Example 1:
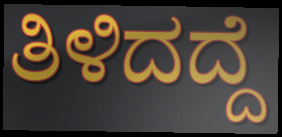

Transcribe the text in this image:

ತಿಳಿದದ್ದೆ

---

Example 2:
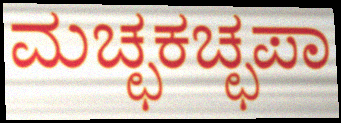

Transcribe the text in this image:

ಮಚ್ಛಕಚ್ಛಪಾ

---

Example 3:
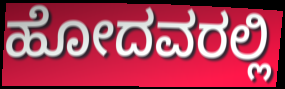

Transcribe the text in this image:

ಹೋದವರಲ್ಲಿ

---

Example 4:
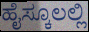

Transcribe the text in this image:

ಹೈಸ್ಕೂಲಲ್ಲಿ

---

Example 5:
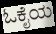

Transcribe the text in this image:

ಓಕೈಯ